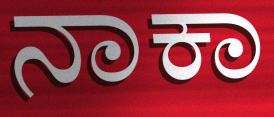
ನಾಕಾ